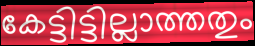
കേട്ടിട്ടില്ലാത്തതും